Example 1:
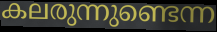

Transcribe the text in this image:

കലരുന്നുണ്ടെന്ന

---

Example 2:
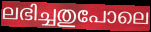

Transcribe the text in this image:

ലഭിച്ചതുപോലെ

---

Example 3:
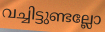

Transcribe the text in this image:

വച്ചിട്ടുണ്ടല്ലോ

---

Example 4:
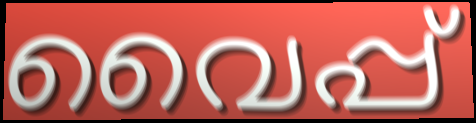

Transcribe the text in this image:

വൈപ്പ്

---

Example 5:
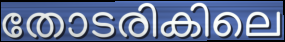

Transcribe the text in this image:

തോടരികിലെ